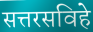
सत्तरसविहे